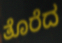
ತೊರೆದ